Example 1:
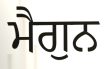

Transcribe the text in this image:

ਮੈਗੁਨ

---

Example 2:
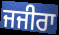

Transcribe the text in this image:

ਜਜੀਰਾ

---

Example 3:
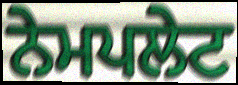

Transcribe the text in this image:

ਨੇਮਪਲੇਟ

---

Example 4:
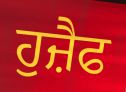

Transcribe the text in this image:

ਹੁਜ਼ੈਫ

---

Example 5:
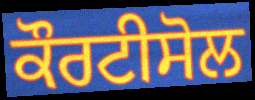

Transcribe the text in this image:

ਕੌਰਟੀਸੋਲ